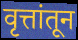
वृत्तांतून